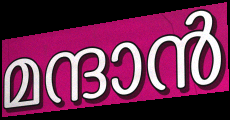
മന്ദാൻ